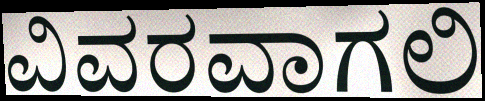
ವಿವರವಾಗಲಿ